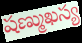
షణ్ముఖస్య